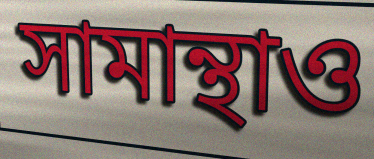
সামান্থাও